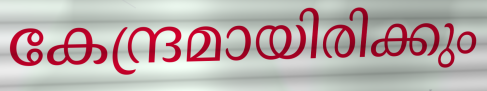
കേന്ദ്രമായിരിക്കും